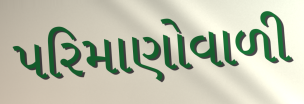
પરિમાણોવાળી